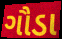
ગૌડા